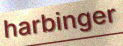
harbinger